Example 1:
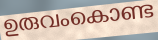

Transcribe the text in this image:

ഉരുവംകൊണ്ട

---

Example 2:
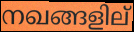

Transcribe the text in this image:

നഖങ്ങളില്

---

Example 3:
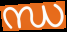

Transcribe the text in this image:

ന്ധ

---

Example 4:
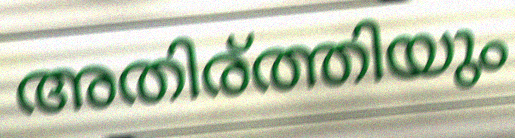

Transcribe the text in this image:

അതിര്ത്തിയും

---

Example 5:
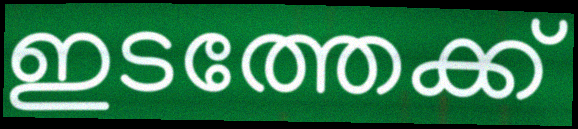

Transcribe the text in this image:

ഇടത്തേക്ക്